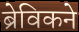
ब्रेविकने